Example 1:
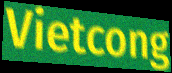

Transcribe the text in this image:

Vietcong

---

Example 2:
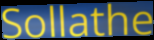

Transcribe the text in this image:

Sollathe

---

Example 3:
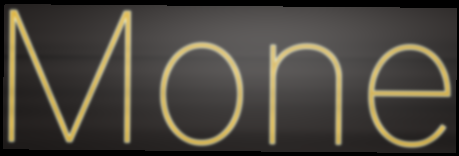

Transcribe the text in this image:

Mone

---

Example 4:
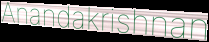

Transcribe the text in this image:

Anandakrishnan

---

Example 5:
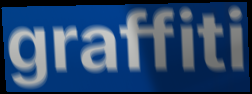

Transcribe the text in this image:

graffiti